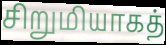
சிறுமியாகத்